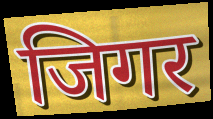
जिगर